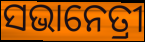
ସଭାନେତ୍ରୀ